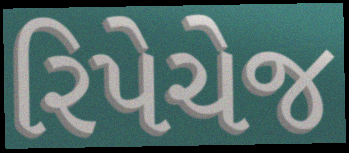
રિપેચેજ